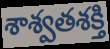
శాశ్వతశక్తి